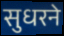
सुधरने